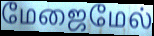
மேஜைமேல்